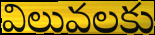
విలువలకు